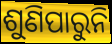
ଶୁଣିପାରୁନି